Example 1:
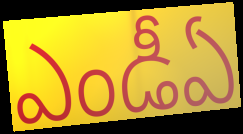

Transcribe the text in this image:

ఎండీఏ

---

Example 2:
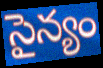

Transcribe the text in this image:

సైన్యం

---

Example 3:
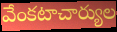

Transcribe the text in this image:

వేంకటాచార్యుల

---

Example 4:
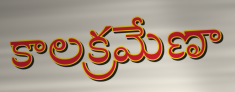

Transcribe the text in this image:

కాలక్రమేణా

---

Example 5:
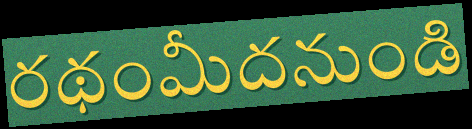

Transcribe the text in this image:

రథంమీదనుండి